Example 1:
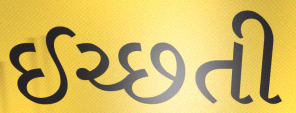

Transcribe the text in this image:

ઈચ્છતી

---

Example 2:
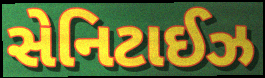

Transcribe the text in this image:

સેનિટાઈઝ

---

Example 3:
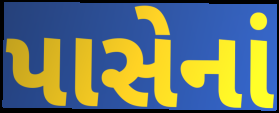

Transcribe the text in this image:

પાસેનાં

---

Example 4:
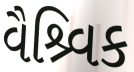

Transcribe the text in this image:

વૈશ્ર્વિક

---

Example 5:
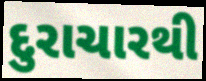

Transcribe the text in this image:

દુરાચારથી